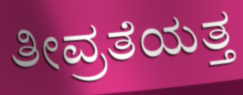
ತೀವ್ರತೆಯತ್ತ